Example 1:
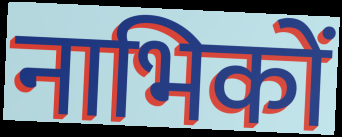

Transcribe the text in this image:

नाभिकों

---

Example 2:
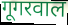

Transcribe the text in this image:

गूगरवाल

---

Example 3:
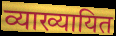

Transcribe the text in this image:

व्याख्यायित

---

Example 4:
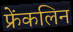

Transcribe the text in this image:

फ्रेंकलिन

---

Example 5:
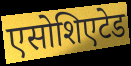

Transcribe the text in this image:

एसोशिएटेड